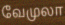
வேமுலா